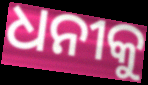
ଧନୀକୁ